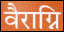
वैराग्नि